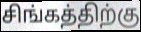
சிங்கத்திற்கு